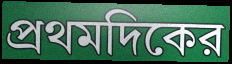
প্রথমদিকের